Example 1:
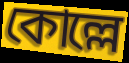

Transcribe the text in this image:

কোল্লে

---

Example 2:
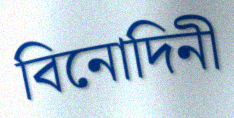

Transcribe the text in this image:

বিনোদিনী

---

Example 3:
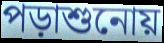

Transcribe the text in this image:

পড়াশুনোয়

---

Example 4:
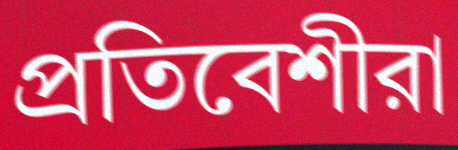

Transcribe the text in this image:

প্রতিবেশীরা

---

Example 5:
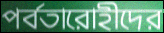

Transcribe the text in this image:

পর্বতারোহীদের